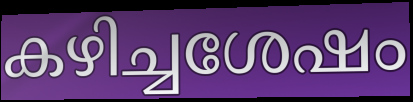
കഴിച്ചശേഷം